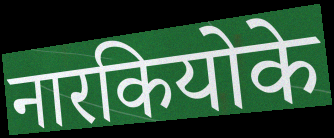
नारकियोके